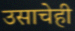
उसाचेही